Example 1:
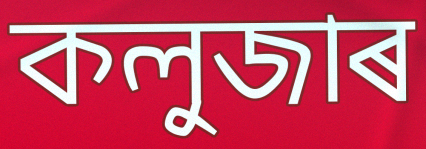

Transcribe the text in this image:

কলুজাৰ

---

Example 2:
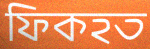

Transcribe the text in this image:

ফিকহত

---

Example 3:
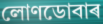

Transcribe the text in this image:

লোণডোবাৰ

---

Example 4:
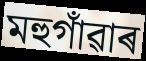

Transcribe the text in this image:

মহুগাঁৱাৰ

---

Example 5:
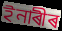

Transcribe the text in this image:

ইনাৰীৰ